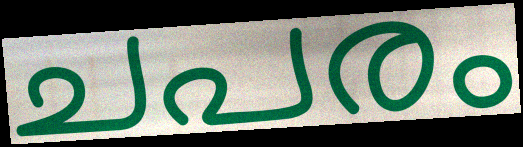
ചപരം